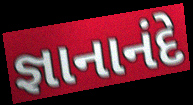
જ્ઞાનાનંદે